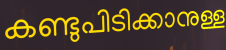
കണ്ടുപിടിക്കാനുള്ള